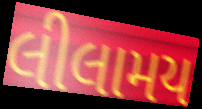
લીલામય